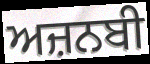
ਅਜ਼ਨਬੀ